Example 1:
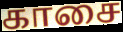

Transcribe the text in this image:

காசை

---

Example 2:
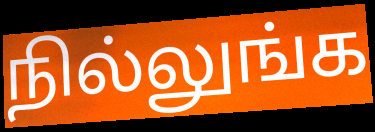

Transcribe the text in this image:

நில்லுங்க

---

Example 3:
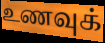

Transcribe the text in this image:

உணவுக்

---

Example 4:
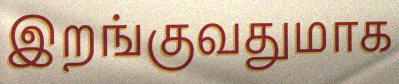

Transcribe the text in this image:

இறங்குவதுமாக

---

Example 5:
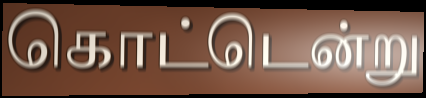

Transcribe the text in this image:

கொட்டென்று